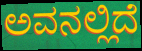
ಅವನಲ್ಲಿದೆ